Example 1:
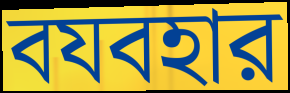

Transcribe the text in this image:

বযবহার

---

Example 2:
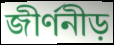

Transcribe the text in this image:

জীর্ণনীড়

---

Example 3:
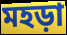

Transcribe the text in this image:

মহড়া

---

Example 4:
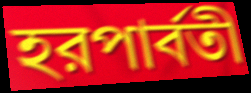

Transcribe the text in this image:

হরপার্বতী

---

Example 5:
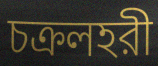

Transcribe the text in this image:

চক্রলহরী